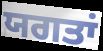
ਯਗਤਾਂ